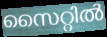
സൈറ്റിൽ